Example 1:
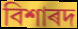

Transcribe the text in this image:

বিশাৰদ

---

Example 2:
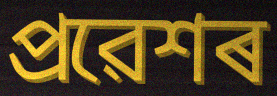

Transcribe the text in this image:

প্ৰৱেশৰ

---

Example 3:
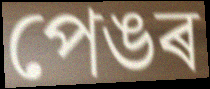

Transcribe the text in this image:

পেঙৰ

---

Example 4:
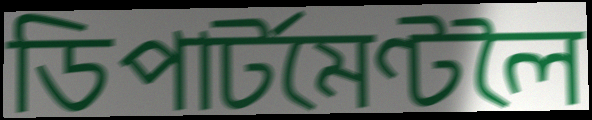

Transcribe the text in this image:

ডিপাৰ্টমেণ্টলৈ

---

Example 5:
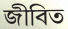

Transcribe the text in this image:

জীবিত